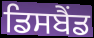
ਡਿਸਬੈਂਡ